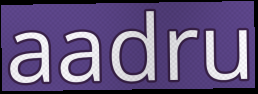
aadru